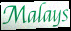
Malays